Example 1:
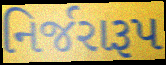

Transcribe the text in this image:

નિર્જરારૂપ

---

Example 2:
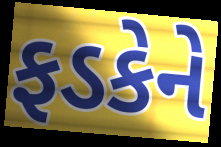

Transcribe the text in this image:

ફડકેને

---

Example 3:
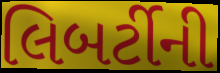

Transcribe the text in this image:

લિબર્ટીની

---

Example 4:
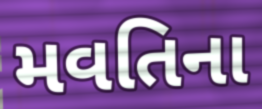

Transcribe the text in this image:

મવતિના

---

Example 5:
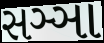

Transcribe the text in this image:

સઞ્ઞા